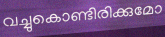
വച്ചുകൊണ്ടിരിക്കുമോ